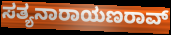
ಸತ್ಯನಾರಾಯಣರಾವ್